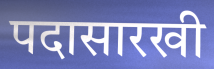
पदासारखी